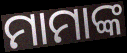
ମାମାଙ୍କ